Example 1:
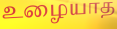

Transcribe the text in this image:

உழையாத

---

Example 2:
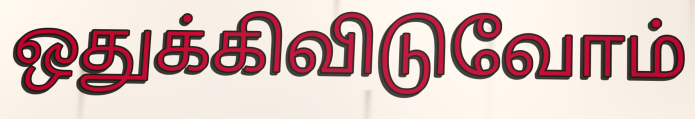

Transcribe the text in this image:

ஒதுக்கிவிடுவோம்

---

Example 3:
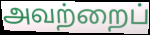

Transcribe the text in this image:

அவற்றைப்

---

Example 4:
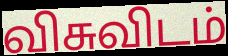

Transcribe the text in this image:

விசுவிடம்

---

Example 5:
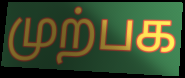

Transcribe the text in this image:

முற்பக